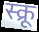
स्क्रू